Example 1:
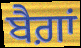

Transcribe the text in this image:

ਬੈਗ਼ਾਂ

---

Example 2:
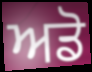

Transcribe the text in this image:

ਅਡੋ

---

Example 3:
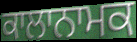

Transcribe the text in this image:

ਕਾਲਾਨਾਮਕ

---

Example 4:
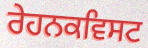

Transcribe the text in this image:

ਰੇਹਨਕਵਿਸਟ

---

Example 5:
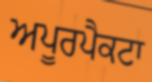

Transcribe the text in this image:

ਅਪੂਰਪੈਕਟਾ